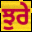
ਝੁਰੇ